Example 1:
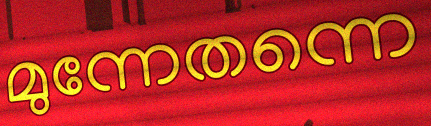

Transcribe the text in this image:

മുന്നേതന്നെ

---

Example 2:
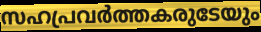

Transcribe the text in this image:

സഹപ്രവർത്തകരുടേയും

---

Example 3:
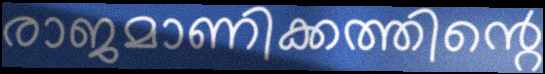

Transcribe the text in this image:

രാജമാണിക്കത്തിന്റെ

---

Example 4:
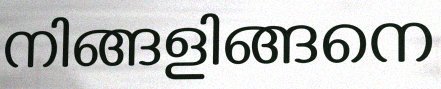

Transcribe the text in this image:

നിങ്ങളിങ്ങനെ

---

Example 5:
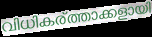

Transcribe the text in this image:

വിധികര്ത്താക്കളായി